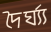
দৈৰ্ঘ্য্য